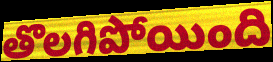
తొలగిపోయింది